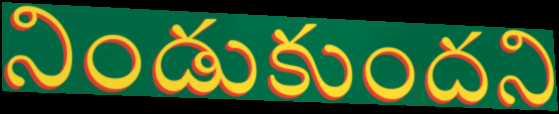
నిండుకుందని